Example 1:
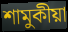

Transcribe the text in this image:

শামুকীয়া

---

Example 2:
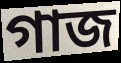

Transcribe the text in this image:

গাজ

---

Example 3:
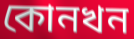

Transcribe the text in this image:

কোনখন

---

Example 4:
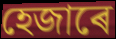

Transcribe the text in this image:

হেজাৰে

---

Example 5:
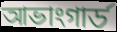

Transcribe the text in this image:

আভাংগাৰ্ড